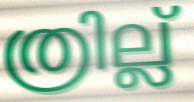
ത്രില്ല്